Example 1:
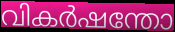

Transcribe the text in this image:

വികർഷന്തോ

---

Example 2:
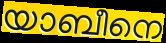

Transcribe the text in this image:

യാബീനെ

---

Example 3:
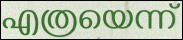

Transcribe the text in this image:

എത്രയെന്ന്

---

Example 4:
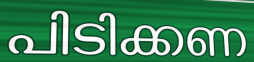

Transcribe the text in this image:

പിടിക്കണ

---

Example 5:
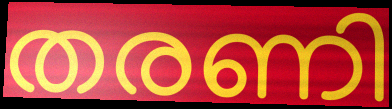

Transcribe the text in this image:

തരണി